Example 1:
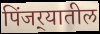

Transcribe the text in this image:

पिंजर्यातील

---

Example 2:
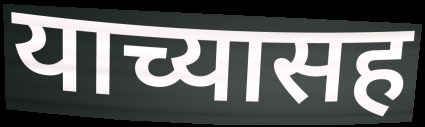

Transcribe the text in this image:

याच्यासह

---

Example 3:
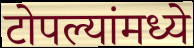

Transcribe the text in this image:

टोपल्यांमध्ये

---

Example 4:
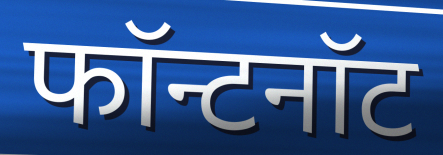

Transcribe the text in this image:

फॉन्टनॉट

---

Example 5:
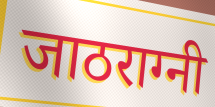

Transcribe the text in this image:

जाठराग्नी